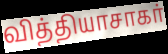
வித்தியாசாகர்